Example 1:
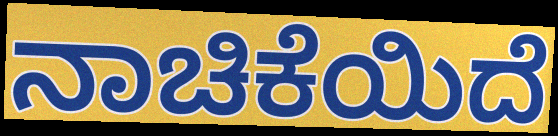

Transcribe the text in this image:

ನಾಚಿಕೆಯಿದೆ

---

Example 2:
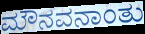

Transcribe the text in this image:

ಮೌನವನಾಂತು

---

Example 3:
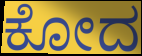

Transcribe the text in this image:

ಕೋದ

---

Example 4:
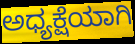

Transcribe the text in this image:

ಅಧ್ಯಕ್ಷೆಯಾಗಿ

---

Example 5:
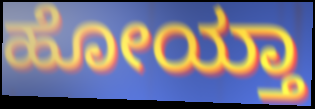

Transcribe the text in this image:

ಹೋಯ್ತಾ